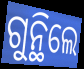
ଗୁନ୍ଥିଲେ